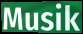
Musik